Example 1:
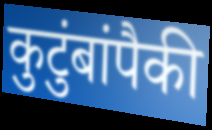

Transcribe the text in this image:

कुटुंबांपैकी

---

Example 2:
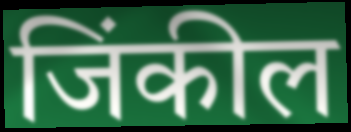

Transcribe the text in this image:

जिंकील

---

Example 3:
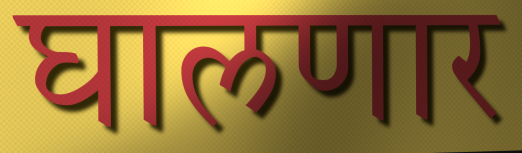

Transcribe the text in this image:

घालणार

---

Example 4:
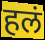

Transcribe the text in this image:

हलं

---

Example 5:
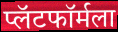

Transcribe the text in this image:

प्लॅटफॉर्मला